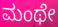
ಮಂಥೇ